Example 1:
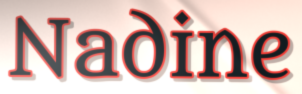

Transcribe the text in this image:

Nadine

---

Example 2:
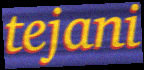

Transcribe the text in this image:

tejani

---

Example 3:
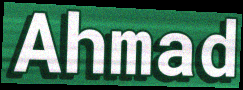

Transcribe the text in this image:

Ahmad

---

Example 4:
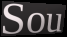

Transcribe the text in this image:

Sou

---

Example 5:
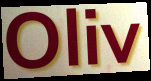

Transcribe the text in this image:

Oliv